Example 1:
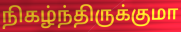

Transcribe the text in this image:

நிகழ்ந்திருக்குமா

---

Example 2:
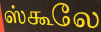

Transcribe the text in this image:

ஸ்கூலே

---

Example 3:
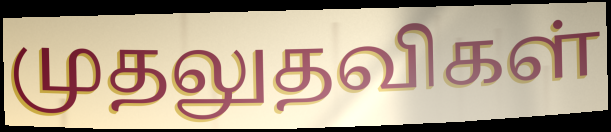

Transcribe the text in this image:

முதலுதவிகள்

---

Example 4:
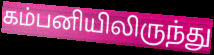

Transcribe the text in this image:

கம்பனியிலிருந்து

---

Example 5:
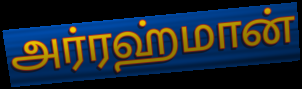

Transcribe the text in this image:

அர்ரஹ்மான்